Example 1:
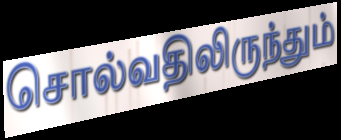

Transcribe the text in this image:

சொல்வதிலிருந்தும்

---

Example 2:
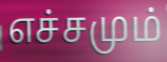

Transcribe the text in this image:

எச்சமும்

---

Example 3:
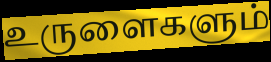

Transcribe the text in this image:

உருளைகளும்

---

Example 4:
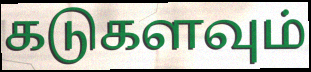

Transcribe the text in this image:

கடுகளவும்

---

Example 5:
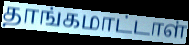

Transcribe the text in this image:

தாங்கமாட்டாள்